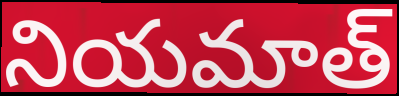
నియమాత్